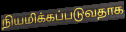
நியமிக்கப்படுவதாக